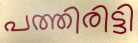
പത്തിരിട്ടി